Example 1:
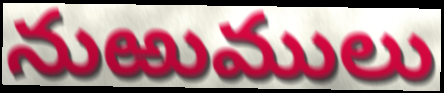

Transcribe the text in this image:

నుఱుములు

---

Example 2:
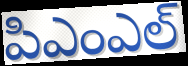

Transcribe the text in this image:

పిఎంఎల్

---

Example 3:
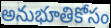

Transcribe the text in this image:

అనుభూతికోసం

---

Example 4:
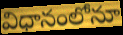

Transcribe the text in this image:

విధానంలోనూ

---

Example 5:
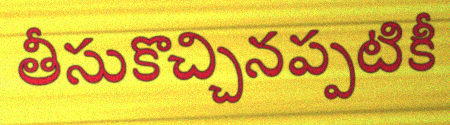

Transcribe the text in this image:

తీసుకొచ్చినప్పటికీ